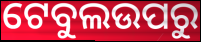
ଟେବୁଲଉପରୁ